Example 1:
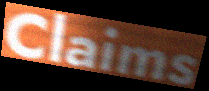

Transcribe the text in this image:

Claims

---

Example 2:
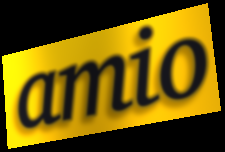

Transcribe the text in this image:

amio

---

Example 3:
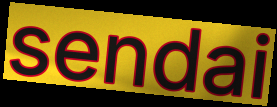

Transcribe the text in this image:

sendai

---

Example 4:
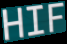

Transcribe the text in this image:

HIF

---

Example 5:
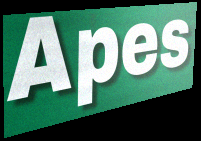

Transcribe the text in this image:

Apes